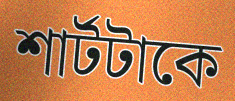
শার্টটাকে